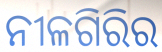
ନୀଳଗିରିର